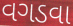
વગડવા